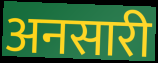
अनसारी